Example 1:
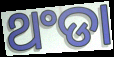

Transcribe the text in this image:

ଥଂଡା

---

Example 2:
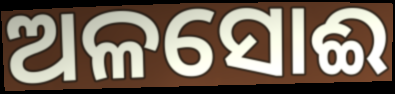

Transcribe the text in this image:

ଅଳସୋଈ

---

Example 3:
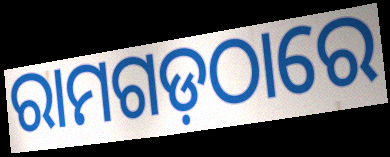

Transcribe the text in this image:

ରାମଗଡ଼ଠାରେ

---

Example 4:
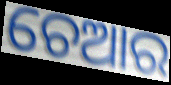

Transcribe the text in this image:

ଚେଆର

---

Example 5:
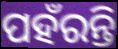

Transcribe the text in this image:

ପହଁରନ୍ତି